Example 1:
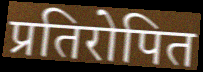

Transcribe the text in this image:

प्रतिरोपित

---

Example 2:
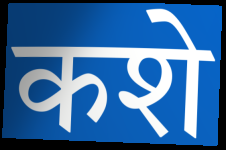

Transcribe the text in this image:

कशे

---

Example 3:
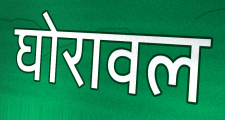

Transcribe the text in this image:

घोरावल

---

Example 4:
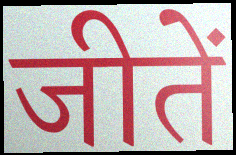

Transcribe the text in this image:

जीतें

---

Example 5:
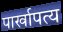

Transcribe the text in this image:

पार्खापत्य